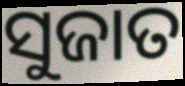
ସୁଜାତ